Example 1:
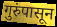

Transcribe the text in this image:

गुरुंपासून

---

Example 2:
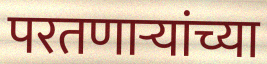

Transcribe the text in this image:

परतणाऱ्यांच्या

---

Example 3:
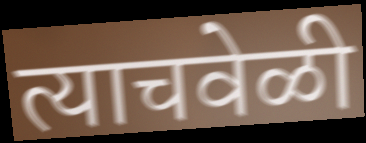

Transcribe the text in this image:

त्याचवेळी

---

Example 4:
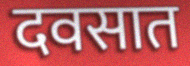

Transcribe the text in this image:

दवसात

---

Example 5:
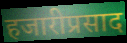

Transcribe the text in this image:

हजारीप्रसाद